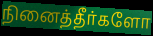
நினைத்தீர்களோ